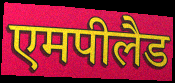
एमपीलैड